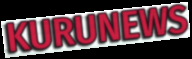
KURUNEWS